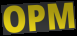
OPM